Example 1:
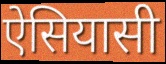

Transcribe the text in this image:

ऐसियासी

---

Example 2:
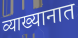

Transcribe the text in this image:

व्याख्यानात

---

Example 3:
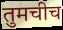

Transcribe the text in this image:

तुमचीच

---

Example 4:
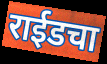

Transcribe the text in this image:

राईडचा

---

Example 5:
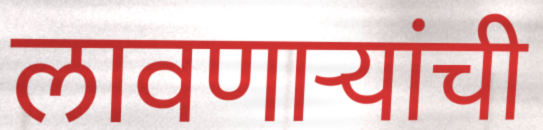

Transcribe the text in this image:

लावणाऱ्यांची